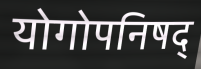
योगोपनिषद्